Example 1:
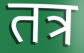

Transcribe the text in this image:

तत्र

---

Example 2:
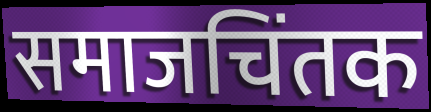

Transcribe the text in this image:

समाजचिंतक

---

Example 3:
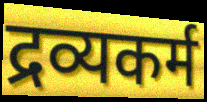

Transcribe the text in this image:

द्रव्यकर्म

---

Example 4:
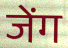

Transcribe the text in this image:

जेंग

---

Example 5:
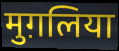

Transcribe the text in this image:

मुग़लिया